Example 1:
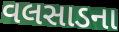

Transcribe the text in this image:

વલસાડના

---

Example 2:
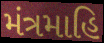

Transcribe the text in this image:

મંત્રમાહિ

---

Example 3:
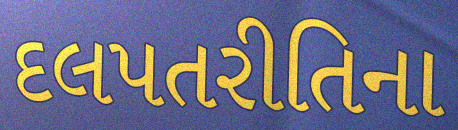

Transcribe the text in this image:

દલપતરીતિના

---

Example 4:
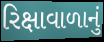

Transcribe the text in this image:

રિક્ષાવાળાનું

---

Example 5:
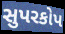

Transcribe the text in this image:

સુપરકોપ